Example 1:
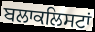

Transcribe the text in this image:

ਬਲਾਕਲਿਸਟਾਂ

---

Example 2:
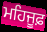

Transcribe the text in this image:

ਮਹਿਜੂਫ਼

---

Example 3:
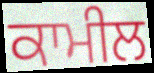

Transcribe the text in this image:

ਕਾਮੀਲ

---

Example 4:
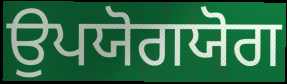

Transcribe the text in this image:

ਉਪਯੋਗਯੋਗ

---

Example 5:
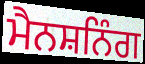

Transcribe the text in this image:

ਮੈਨਸ਼ਨਿੰਗ